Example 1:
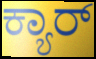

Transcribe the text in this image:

ಕ್ಯಾರ್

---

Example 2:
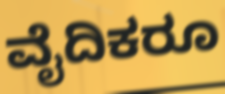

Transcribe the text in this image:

ವೈದಿಕರೂ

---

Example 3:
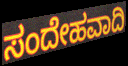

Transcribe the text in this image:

ಸಂದೇಹವಾದಿ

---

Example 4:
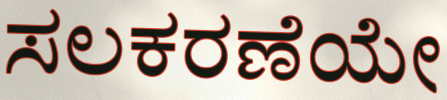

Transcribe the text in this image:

ಸಲಕರಣೆಯೇ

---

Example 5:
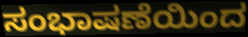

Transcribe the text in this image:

ಸಂಭಾಷಣೆಯಿಂದ